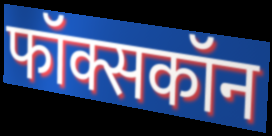
फॉक्सकॉन